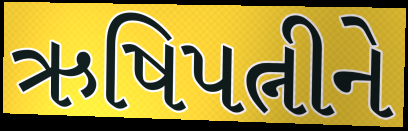
ઋષિપત્નીને